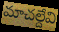
మాచల్దేవి